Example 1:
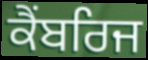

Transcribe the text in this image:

ਕੈਂਬਰਿਜ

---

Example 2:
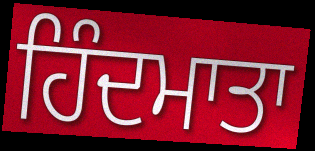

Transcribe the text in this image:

ਹਿੰਦਮਾਤਾ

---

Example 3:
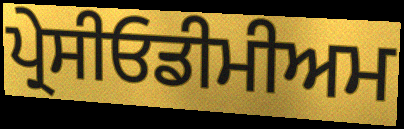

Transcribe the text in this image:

ਪ੍ਰੇਸੀਓਡੀਮੀਅਮ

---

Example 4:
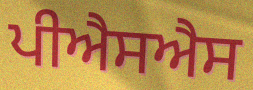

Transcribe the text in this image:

ਪੀਐਸਐਸ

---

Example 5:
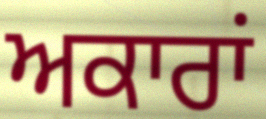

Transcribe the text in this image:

ਅਕਾਰਾਂ